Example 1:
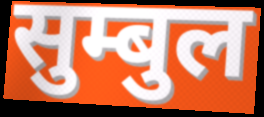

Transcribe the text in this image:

सुम्बुल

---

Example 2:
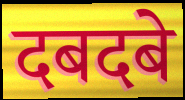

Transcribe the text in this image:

दबदबे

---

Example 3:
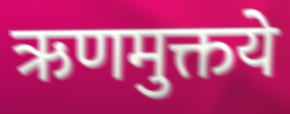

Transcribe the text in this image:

ऋणमुक्तये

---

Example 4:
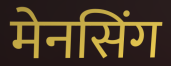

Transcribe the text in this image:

मेनसिंग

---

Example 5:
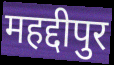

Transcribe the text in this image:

महद्दीपुर